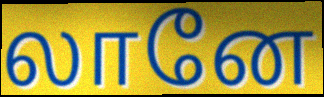
லானே